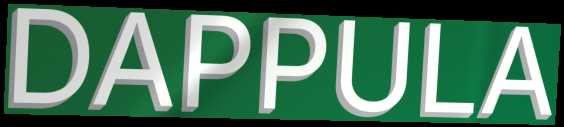
DAPPULA